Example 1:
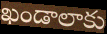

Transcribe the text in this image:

ఖండాలాకు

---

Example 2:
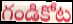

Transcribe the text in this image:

గండికోట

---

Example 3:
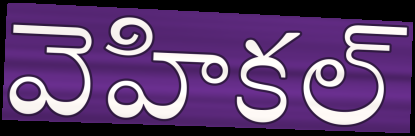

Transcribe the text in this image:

వెహికల్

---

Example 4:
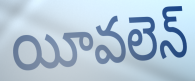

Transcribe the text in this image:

యీవలెన్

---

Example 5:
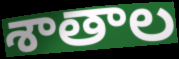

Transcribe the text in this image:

శాతాల